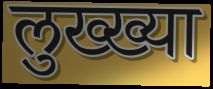
लुख्ख्या